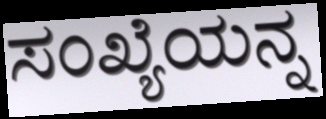
ಸಂಖ್ಯೆಯನ್ನ